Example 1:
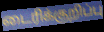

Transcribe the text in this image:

டைரிக்குறிப்பு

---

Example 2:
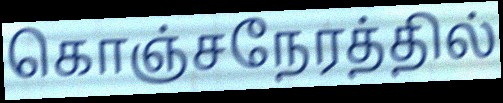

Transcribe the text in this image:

கொஞ்சநேரத்தில்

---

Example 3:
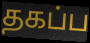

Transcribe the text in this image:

தகப்ப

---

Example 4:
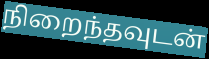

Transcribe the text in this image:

நிறைந்தவுடன்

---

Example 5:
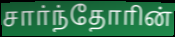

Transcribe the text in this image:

சார்ந்தோரின்